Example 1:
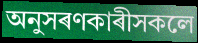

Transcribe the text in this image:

অনুসৰণকাৰীসকলে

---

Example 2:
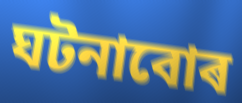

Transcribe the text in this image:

ঘটনাবোৰ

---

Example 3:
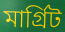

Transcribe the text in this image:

মাৰ্গ্ৰিট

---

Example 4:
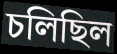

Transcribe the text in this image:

চলিছিল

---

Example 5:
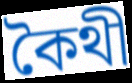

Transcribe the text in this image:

কৈথী